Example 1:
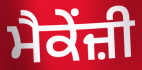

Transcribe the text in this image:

ਮੈਕੇਂਜ਼ੀ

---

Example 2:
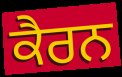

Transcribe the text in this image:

ਕੈਰਨ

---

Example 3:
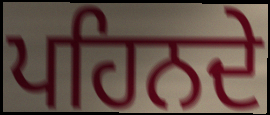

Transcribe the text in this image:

ਪਹਿਨਦੇ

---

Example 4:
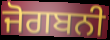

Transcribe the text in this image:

ਜੋਗਬਨੀ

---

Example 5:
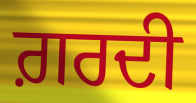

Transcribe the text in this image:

ਗ਼ਰਦੀ